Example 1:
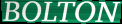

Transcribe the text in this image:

BOLTON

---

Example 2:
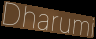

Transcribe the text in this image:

Dharumi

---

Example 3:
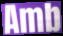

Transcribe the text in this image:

Amb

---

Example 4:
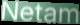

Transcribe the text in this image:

Netam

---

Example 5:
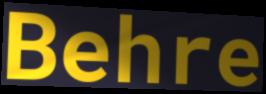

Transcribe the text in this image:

Behre